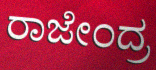
ರಾಜೇಂದ್ರ